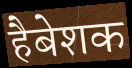
हैबेशक